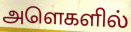
அளெகளில்